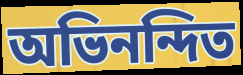
অভিনন্দিত